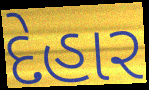
દેહાર